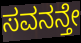
ಸವನನ್ತೇ